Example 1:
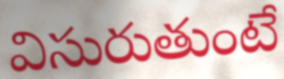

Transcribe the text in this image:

విసురుతుంటే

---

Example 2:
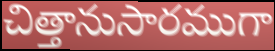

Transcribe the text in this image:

చిత్తానుసారముగా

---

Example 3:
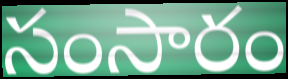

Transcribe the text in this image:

సంసారం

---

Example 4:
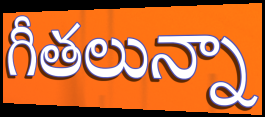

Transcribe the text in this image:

గీతలున్నా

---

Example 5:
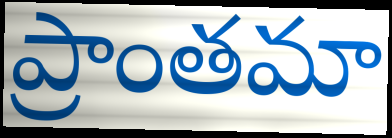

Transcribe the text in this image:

ప్రాంతమా